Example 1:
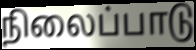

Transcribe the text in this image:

நிலைப்பாடு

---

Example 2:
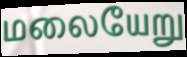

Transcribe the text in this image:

மலையேறு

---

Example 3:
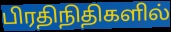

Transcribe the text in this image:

பிரதிநிதிகளில்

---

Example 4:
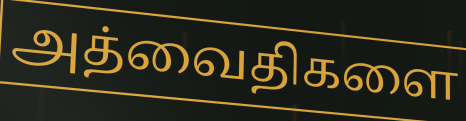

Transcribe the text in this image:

அத்வைதிகளை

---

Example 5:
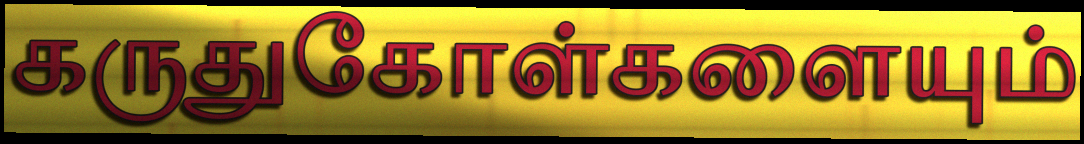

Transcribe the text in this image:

கருதுகோள்களையும்